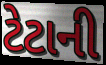
ટેટાની